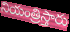
నియంత్రిస్తారు